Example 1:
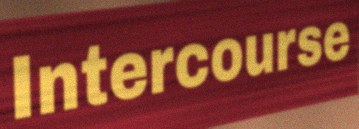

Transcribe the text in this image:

Intercourse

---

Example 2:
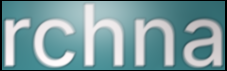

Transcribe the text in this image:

rchna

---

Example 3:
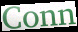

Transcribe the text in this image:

Conn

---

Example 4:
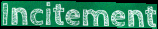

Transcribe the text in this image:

Incitement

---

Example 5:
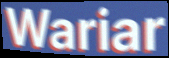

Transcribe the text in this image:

Wariar